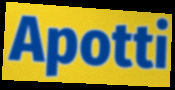
Apotti